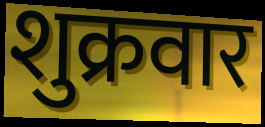
शुक्रवार